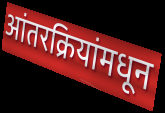
आंतरक्रियांमधून